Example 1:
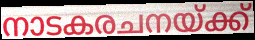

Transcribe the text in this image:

നാടകരചനയ്ക്ക്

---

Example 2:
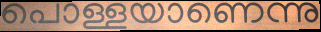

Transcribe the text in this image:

പൊള്ളയാണെന്നു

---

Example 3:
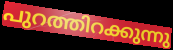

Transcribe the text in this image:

പുറത്തിറക്കുന്നു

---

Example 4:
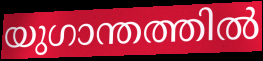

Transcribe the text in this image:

യുഗാന്തത്തിൽ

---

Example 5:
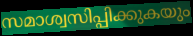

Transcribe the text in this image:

സമാശ്വസിപ്പിക്കുകയും